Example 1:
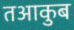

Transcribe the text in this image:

तआकुब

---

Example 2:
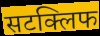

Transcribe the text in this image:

सटक्लिफ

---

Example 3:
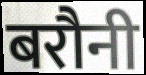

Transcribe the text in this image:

बरौनी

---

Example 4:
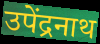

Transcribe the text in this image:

उपेंद्रनाथ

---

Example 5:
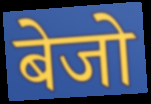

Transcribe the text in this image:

बेजो